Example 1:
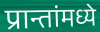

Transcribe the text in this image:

प्रान्तांमध्ये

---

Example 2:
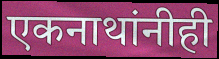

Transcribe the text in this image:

एकनाथांनीही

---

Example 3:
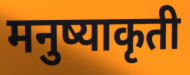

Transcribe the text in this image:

मनुष्याकृती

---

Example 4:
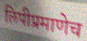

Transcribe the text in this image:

लिपीप्रमाणेच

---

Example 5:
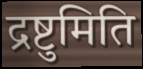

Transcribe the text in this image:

द्रष्टुमिति